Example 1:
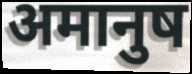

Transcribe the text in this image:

अमानुष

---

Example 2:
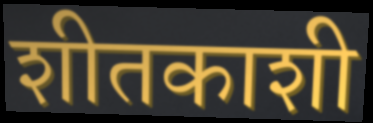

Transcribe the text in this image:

शीतकाशी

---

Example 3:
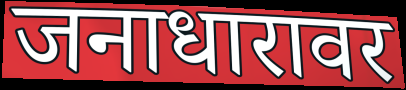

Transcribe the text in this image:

जनाधारावर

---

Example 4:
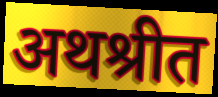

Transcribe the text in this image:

अथश्रीत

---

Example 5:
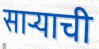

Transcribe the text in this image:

साऱ्याची